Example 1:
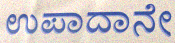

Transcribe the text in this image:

ಉಪಾದಾನೇ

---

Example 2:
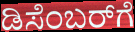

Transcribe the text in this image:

ಡಿಸೆಂಬರ್‌ಗೆ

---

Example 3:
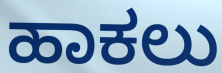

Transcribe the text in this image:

ಹಾಕಲು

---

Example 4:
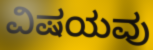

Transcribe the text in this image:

ವಿಷಯವು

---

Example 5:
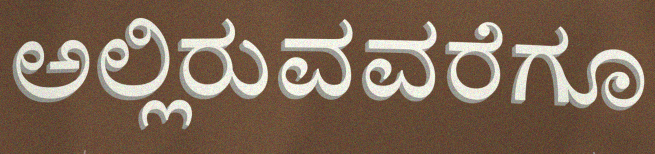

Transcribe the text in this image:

ಅಲ್ಲಿರುವವರೆಗೂ